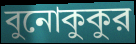
বুনোকুকুর